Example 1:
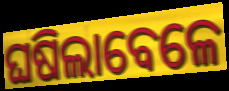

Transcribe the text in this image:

ଘଷିଲାବେଳେ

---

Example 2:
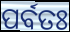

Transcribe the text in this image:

ପର୍ବତଃ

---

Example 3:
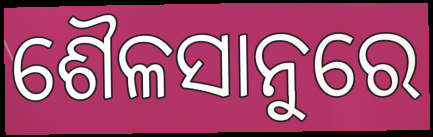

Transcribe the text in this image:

ଶୈଳସାନୁରେ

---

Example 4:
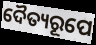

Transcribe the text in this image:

ଦୈତ୍ୟରୂପେ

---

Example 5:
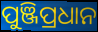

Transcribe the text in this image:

ପୁଞ୍ଜିପ୍ରଧାନ